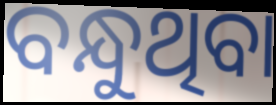
ବନ୍ଧୁଥିବା